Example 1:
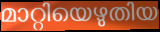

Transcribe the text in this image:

മാറ്റിയെഴുതിയ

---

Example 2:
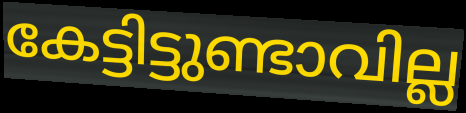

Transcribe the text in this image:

കേട്ടിട്ടുണ്ടാവില്ല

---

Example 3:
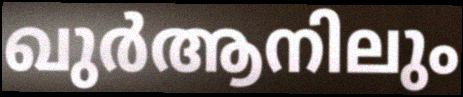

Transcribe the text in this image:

ഖുർആനിലും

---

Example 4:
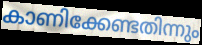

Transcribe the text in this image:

കാണിക്കേണ്ടതിന്നും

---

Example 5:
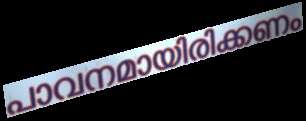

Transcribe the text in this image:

പാവനമായിരിക്കണം